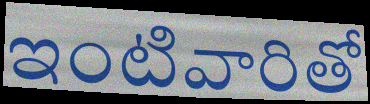
ఇంటివారితో